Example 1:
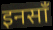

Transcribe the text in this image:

इनसाँ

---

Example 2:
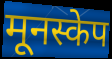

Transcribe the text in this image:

मूनस्केप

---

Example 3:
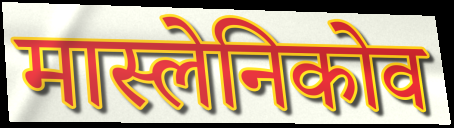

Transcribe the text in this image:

मास्लेनिकोव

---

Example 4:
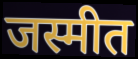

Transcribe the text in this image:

जस्मीत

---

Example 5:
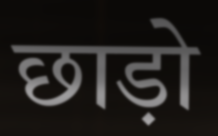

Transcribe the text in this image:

छाड़ो